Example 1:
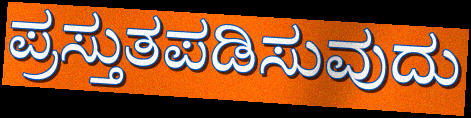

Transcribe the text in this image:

ಪ್ರಸ್ತುತಪಡಿಸುವುದು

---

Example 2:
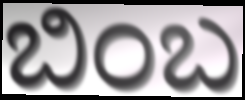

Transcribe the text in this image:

ಬಿಂಬ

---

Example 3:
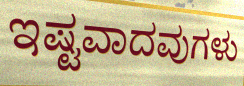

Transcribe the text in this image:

ಇಷ್ಟವಾದವುಗಳು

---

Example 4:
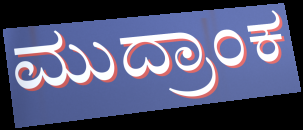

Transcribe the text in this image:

ಮುದ್ರಾಂಕ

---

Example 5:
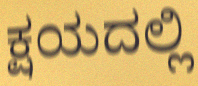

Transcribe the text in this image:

ಕ್ಷಯದಲ್ಲಿ